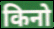
किनो